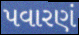
પવારણં